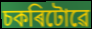
চকৰিটোৱে